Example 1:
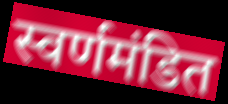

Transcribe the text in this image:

स्वर्णमंडित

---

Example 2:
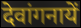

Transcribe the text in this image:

देवांगनायें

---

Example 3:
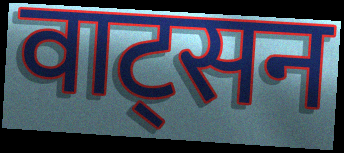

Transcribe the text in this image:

वाट्सन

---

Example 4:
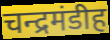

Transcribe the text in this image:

चन्द्रमंडीह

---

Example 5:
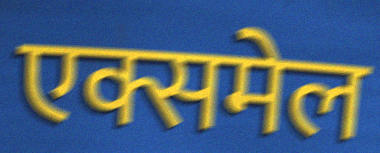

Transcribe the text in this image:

एक्समेल